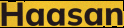
Haasan